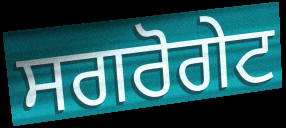
ਸਗਰੋਗੇਟ